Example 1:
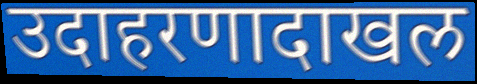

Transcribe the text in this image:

उदाहरणादाखल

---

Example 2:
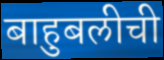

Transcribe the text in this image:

बाहुबलीची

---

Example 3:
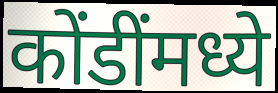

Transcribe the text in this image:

कोंडींमध्ये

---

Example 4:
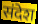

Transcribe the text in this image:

संदेश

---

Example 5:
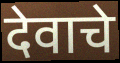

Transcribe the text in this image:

देवाचे